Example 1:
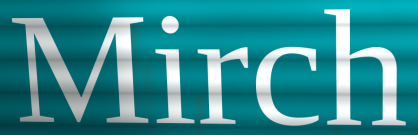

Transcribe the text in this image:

Mirch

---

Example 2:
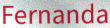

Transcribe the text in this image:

Fernanda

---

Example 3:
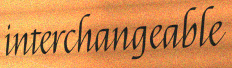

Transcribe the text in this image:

interchangeable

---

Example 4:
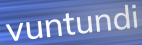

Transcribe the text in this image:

vuntundi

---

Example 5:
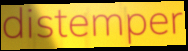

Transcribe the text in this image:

distemper